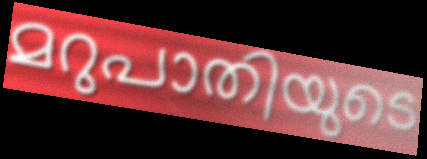
മറുപാതിയുടെ